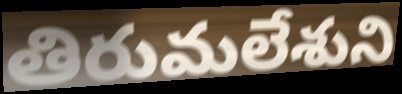
తిరుమలేశుని